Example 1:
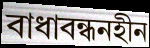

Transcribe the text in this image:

বাধাবন্ধনহীন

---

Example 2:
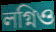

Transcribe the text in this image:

লগ্নিও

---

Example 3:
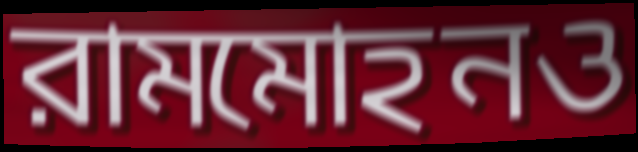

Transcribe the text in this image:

রামমোহনও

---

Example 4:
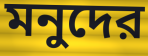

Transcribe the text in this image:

মনুদের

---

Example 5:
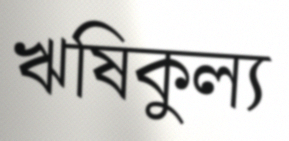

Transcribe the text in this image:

ঋষিকুল্য